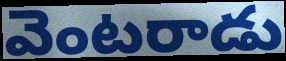
వెంటరాడు